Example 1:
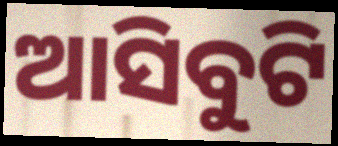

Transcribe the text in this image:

ଆସିବୁଟି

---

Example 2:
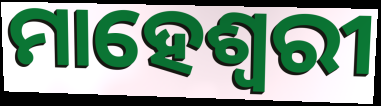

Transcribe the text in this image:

ମାହେଶ୍ଵରୀ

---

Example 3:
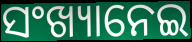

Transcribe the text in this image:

ସଂଖ୍ୟାନେଇ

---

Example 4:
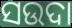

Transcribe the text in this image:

ସଉଦା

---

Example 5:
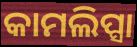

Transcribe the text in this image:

କାମଲିପ୍ସା